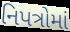
નિપત્રોમાં